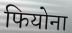
फियोना